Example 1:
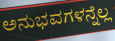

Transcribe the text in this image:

ಅನುಭವಗಳನ್ನೆಲ್ಲ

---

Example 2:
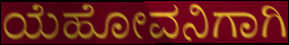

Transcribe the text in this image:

ಯೆಹೋವನಿಗಾಗಿ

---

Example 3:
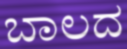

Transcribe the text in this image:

ಬಾಲದ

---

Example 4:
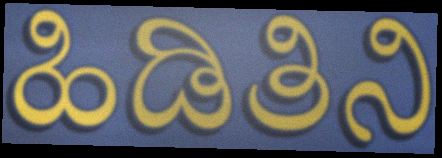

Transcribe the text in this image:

ಹಿಡಿತಿನಿ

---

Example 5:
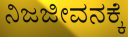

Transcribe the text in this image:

ನಿಜಜೀವನಕ್ಕೆ